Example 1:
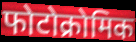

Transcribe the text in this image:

फोटोक्रोमिक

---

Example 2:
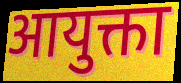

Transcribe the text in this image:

आयुक्ता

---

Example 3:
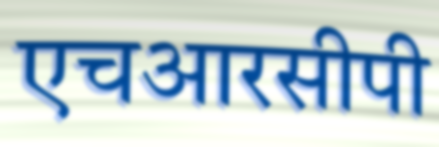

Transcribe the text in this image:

एचआरसीपी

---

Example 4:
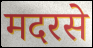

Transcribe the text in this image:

मदरसे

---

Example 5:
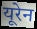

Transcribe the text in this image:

यूरेन